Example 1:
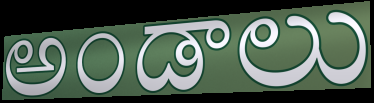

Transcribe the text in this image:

అండాలు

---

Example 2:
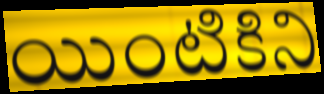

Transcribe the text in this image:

యింటికిని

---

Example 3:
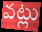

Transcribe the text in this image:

వట్లు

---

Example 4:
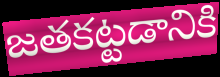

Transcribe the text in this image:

జతకట్టడానికి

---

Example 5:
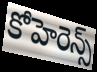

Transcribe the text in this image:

కోహెరెన్స్